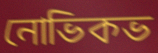
নোভিকভ